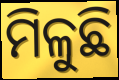
ମିଳୁଛି